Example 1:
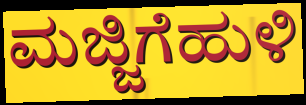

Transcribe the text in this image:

ಮಜ್ಜಿಗೆಹುಳಿ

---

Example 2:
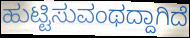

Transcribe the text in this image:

ಹುಟ್ಟಿಸುವಂಥದ್ದಾಗಿದೆ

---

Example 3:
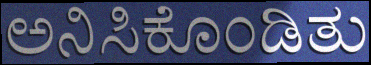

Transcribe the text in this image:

ಅನಿಸಿಕೊಂಡಿತು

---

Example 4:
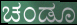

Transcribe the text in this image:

ಚಂಡೂ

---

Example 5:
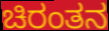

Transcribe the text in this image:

ಚಿರಂತನ